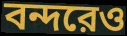
বন্দরেও